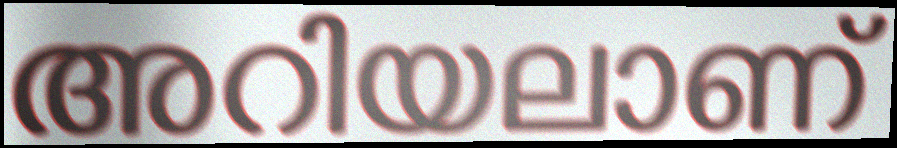
അറിയലാണ്